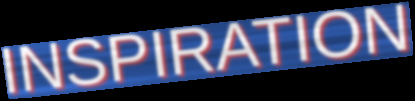
INSPIRATION